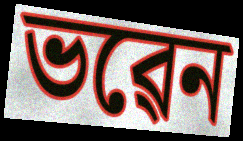
ভৱেন